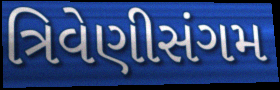
ત્રિવેણીસંગમ